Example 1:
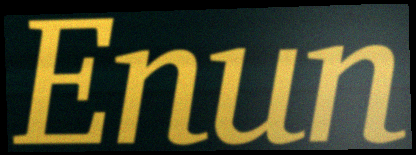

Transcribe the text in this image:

Enun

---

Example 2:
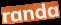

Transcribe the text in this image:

randa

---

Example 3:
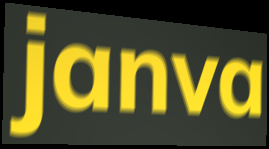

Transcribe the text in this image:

janva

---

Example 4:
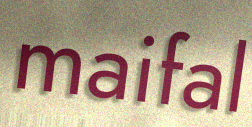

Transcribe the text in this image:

maifal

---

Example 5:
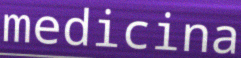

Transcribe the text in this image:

medicina